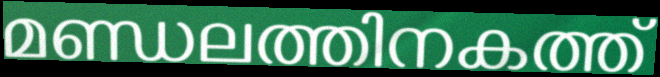
മണ്ഡലത്തിനകത്ത്